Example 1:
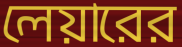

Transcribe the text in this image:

লেয়ারের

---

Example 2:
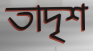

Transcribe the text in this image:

তাদৃশ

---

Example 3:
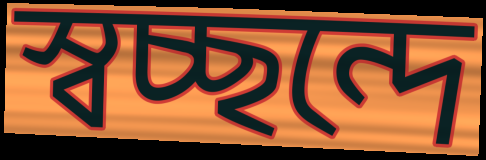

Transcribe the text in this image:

স্বচ্ছন্দে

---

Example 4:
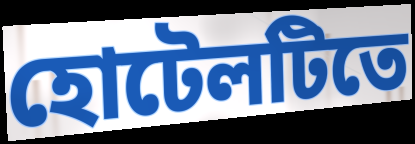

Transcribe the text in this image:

হোটেলটিতে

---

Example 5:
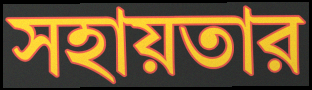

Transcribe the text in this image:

সহায়তার